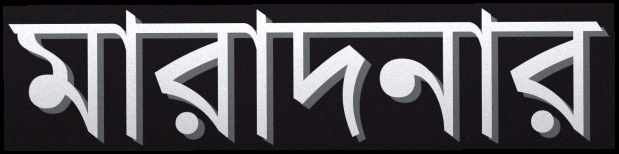
মারাদনার